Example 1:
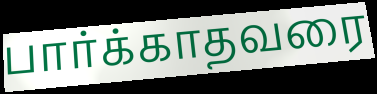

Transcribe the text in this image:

பார்க்காதவரை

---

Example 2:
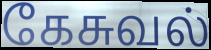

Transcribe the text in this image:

கேசுவல்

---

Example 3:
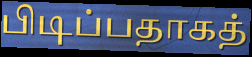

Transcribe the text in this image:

பிடிப்பதாகத்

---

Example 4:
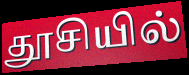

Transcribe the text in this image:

தூசியில்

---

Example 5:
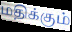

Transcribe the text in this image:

மதிக்கும்